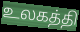
உலகத்தி